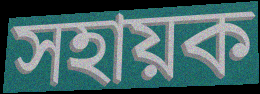
সহায়ক